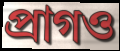
প্রাগও